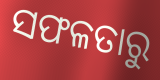
ସଫଳତାରୁ